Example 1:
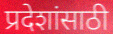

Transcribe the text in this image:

प्रदेशांसाठी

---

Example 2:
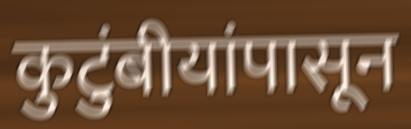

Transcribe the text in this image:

कुटुंबीयांपासून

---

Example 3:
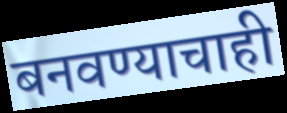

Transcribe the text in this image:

बनवण्याचाही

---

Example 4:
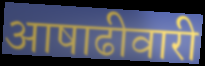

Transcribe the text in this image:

आषाढीवारी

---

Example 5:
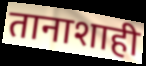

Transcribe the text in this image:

तानाशाही